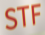
STF